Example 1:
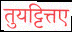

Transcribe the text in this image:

तुयट्टित्तए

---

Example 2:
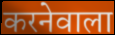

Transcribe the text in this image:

करनेवाला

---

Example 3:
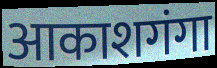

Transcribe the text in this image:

आकाशगंगा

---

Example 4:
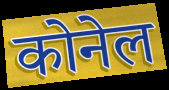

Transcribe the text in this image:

कोनेल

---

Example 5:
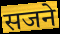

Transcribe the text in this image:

सजने